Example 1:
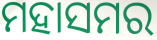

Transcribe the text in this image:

ମହାସମର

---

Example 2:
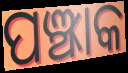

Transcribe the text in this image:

ପଞ୍ଝାକ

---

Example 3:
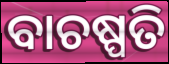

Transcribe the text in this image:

ବାଚଷ୍ପତି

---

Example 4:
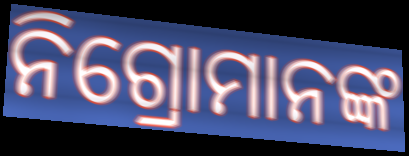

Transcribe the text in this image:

ନିଗ୍ରୋମାନଙ୍କ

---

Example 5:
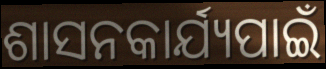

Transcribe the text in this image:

ଶାସନକାର୍ଯ୍ୟପାଇଁ